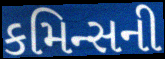
કમિન્સની